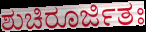
ಶುಚಿರೂರ್ಜಿತಃ